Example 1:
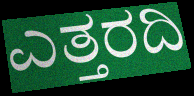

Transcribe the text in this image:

ಎತ್ತರದಿ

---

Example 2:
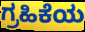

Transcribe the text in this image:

ಗ್ರಹಿಕೆಯ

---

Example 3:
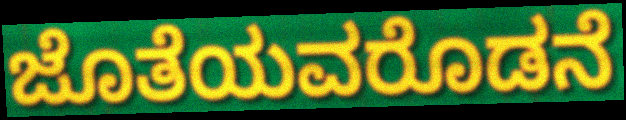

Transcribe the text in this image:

ಜೊತೆಯವರೊಡನೆ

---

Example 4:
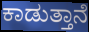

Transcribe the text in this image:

ಕಾಡುತ್ತಾನೆ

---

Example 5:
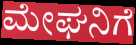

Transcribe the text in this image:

ಮೇಘನಿಗೆ